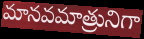
మానవమాత్రునిగా